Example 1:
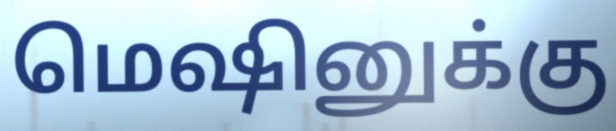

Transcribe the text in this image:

மெஷினுக்கு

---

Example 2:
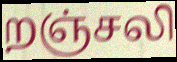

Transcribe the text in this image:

றஞ்சலி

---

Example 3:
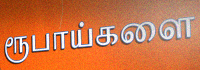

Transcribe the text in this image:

ரூபாய்களை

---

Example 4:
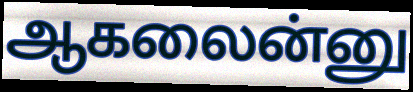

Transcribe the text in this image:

ஆகலைன்னு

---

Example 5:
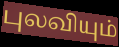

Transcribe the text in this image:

புலவியும்